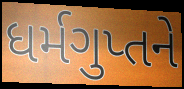
ધર્મગુપ્તને